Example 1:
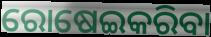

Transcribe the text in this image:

ରୋଷେଇକରିବା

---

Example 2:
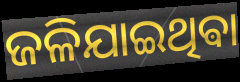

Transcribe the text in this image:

ଜଳିଯାଇଥିଵା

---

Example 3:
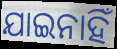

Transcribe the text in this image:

ଯାଇନାହିଁ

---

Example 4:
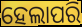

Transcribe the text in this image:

ହେଲାପରି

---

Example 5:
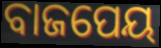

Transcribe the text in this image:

ବାଜପେୟ